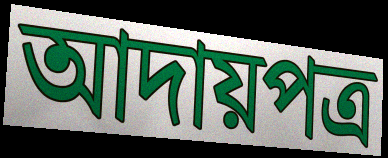
আদায়পত্র